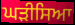
ਘੜੀਸਿਆ